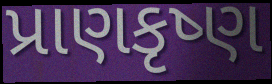
પ્રાણકૃષ્ણ